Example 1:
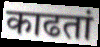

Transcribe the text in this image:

काढतां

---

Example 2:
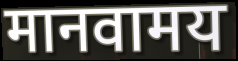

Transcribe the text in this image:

मानवामय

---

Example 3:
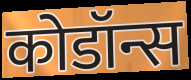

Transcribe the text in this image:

कोडॉन्स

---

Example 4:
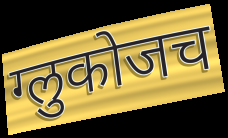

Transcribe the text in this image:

ग्लुकोजच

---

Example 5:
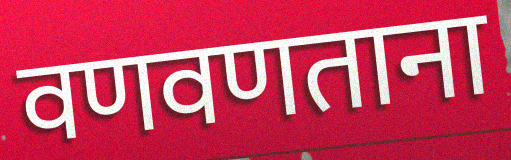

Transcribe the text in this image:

वणवणताना